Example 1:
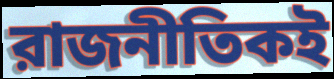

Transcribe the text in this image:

রাজনীতিকই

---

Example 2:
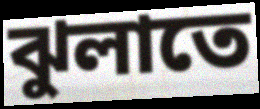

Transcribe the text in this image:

ঝুলাতে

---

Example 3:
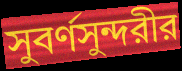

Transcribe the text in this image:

সুবর্ণসুন্দরীর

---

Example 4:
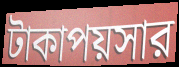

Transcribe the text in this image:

টাকাপয়সার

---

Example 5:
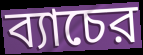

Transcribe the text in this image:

ব্যাচের